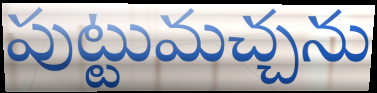
పుట్టుమచ్చను